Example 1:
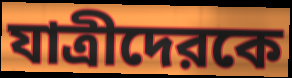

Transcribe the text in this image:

যাত্রীদেরকে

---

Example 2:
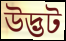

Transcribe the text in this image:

উদ্ভট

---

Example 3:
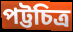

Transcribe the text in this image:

পট্টচিত্র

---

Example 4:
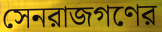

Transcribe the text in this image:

সেনরাজগণের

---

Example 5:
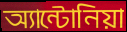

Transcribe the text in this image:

অ্যান্টোনিয়া